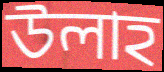
উলাহ